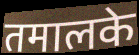
तमालके